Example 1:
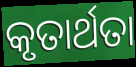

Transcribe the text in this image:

କୃତାର୍ଥତା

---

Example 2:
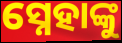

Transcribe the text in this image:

ସ୍ନେହାଙ୍କୁ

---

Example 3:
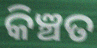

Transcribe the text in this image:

କିଞ୍ଚତ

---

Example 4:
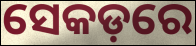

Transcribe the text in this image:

ସେକଡ଼ରେ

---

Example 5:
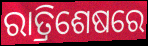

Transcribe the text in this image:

ରାତ୍ରିଶେଷରେ